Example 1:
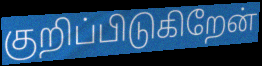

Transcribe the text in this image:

குறிப்பிடுகிறேன்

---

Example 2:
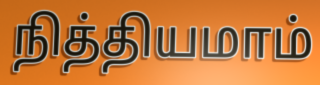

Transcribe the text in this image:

நித்தியமாம்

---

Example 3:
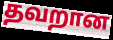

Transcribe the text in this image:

தவறான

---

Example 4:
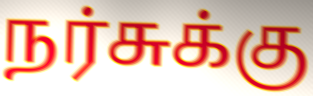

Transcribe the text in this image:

நர்சுக்கு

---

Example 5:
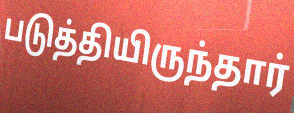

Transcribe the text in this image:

படுத்தியிருந்தார்